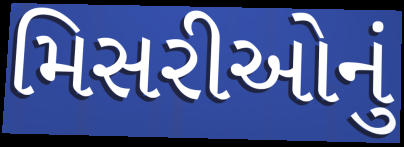
મિસરીઓનું